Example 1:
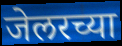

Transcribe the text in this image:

जेलरच्या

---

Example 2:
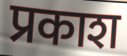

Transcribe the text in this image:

प्रकाश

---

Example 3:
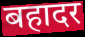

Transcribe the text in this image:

बहादर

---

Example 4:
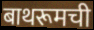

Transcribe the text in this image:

बाथरूमची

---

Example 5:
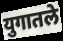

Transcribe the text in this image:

युगातले